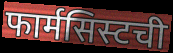
फार्मसिस्टची